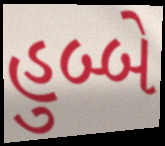
હુબ્બે